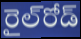
రైల్‌రోడ్